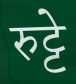
रुट्टे